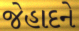
જેહાદને